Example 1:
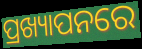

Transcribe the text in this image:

ପ୍ରଖ୍ୟାପନରେ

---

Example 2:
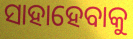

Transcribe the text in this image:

ସାହାହେବାକୁ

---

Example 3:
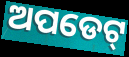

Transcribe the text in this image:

ଅପଡେଟ୍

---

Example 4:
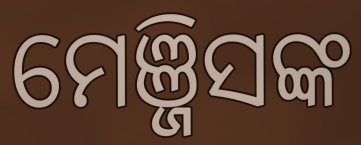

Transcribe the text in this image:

ମେଞ୍ଜିସଙ୍କ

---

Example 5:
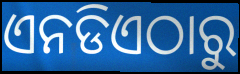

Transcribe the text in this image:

ଏନଡିଏଠାରୁ